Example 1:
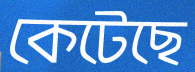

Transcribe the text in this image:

কেটেছে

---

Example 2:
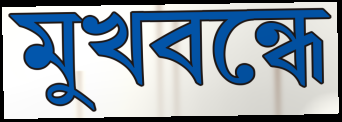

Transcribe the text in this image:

মুখবন্ধে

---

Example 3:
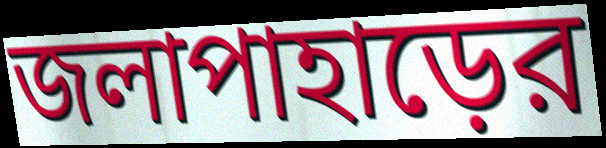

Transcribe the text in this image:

জলাপাহাড়ের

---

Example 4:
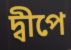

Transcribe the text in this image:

দ্বীপে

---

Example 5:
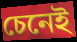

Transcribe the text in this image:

চেনেই